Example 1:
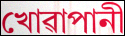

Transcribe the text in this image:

খোৱাপানী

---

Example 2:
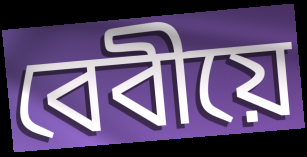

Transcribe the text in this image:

বেবীয়ে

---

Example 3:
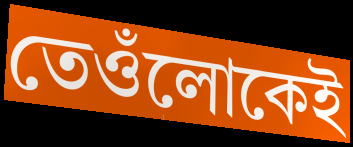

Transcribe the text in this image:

তেওঁলোকেই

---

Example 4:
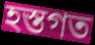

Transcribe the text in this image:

হস্তগত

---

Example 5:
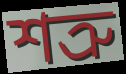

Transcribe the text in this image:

শত্ৰু